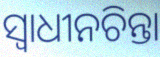
ସ୍ୱାଧୀନଚିନ୍ତା